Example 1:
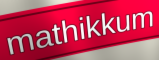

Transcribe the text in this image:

mathikkum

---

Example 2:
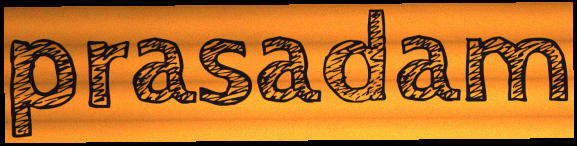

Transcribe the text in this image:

prasadam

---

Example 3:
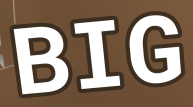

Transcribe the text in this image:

BIG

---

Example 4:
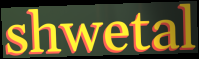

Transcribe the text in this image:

shwetal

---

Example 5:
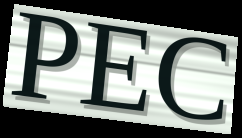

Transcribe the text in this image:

PEC